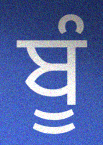
ਬੂੰ